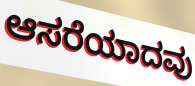
ಆಸರೆಯಾದವು